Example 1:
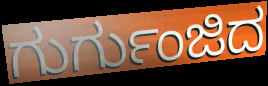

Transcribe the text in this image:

ಗುರ್ಗುಂಜಿದ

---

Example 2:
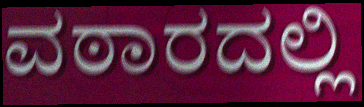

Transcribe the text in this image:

ವಠಾರದಲ್ಲಿ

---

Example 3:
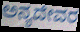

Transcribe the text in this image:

ಅನ್ಯದೇವರ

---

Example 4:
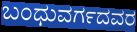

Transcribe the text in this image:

ಬಂಧುವರ್ಗದವರ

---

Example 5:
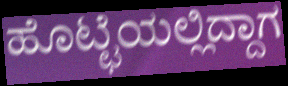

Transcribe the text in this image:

ಹೊಟ್ಟೆಯಲ್ಲಿದ್ದಾಗ